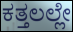
ಕತ್ತಲಲ್ಲೇ